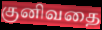
குனிவதை